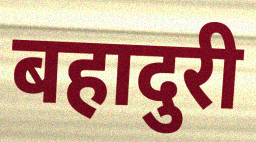
बहादुरी